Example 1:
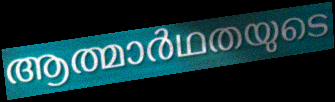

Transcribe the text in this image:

ആത്മാർഥതയുടെ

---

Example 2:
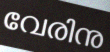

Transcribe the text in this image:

വേരിനു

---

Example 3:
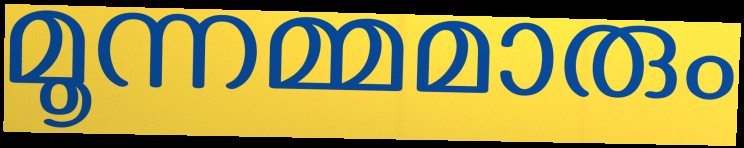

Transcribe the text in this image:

മൂന്നമ്മമാരും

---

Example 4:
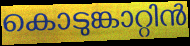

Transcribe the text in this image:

കൊടുങ്കാറ്റിൻ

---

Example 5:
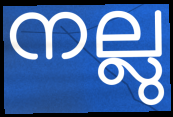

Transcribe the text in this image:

നല്ലു